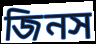
জিনস